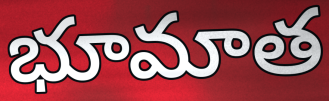
భూమాత